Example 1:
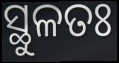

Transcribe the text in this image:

ସ୍ଥୁଳତଃ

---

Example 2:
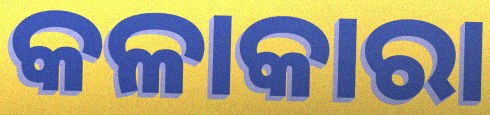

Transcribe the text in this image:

କଳାକାରା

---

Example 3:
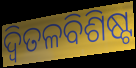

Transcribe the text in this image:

ଦ୍ୱିତଳବିଶିଷ୍ଟ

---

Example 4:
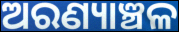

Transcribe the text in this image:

ଅରଣ୍ୟାଞ୍ଚଳ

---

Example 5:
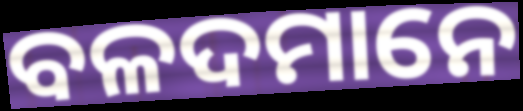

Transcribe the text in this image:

ବଳଦମାନେ